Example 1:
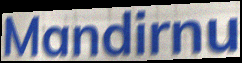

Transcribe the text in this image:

Mandirnu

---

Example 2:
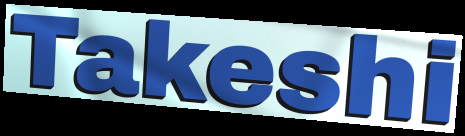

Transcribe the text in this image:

Takeshi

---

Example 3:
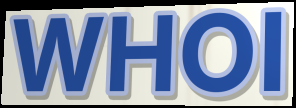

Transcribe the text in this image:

WHOI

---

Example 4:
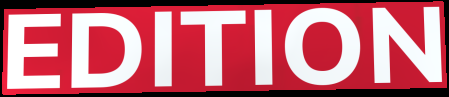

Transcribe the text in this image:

EDITION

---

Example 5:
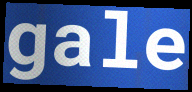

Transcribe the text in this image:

gale